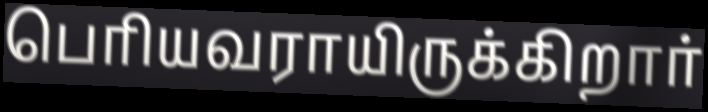
பெரியவராயிருக்கிறார்